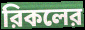
রিকলের